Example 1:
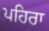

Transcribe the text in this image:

ਪਹਿਰਾ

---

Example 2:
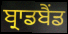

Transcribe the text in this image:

ਬ੍ਰਾਡਬੈਂਡ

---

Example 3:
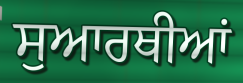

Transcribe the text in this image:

ਸੁਆਰਥੀਆਂ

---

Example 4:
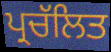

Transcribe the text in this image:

ਪ੍ਰਚੱਲਿਤ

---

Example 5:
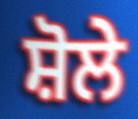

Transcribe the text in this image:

ਸ਼ੋਲੇ